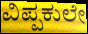
ವಿಪ್ಪಕುಲೇ